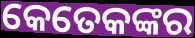
କେତେକଙ୍କର